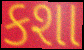
કશા